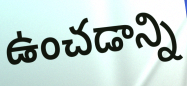
ఉంచడాన్ని